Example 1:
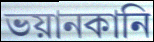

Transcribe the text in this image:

ভয়ানকানি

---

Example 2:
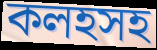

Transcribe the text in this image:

কলহসহ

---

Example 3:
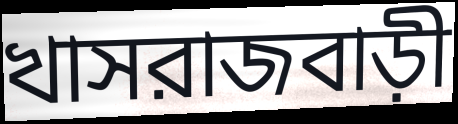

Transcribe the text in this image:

খাসরাজবাড়ী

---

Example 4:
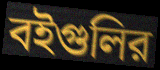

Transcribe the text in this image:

বইগুলির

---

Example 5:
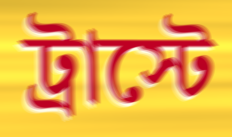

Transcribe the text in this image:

ট্রাস্টে